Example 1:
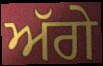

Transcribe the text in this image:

ਅੱਗੇ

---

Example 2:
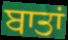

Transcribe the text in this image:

ਬਾਤਾਂ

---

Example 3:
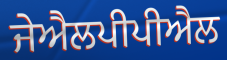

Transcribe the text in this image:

ਜੇਐਲਪੀਪੀਐਲ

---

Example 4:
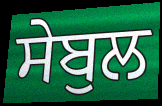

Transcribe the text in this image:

ਸੇਬੁਲ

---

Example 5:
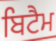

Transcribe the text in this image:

ਬਿਟੈਮ